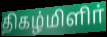
திகழ்மிளிர்